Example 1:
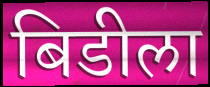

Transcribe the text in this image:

बिडीला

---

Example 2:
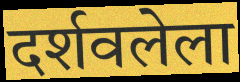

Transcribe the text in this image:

दर्शवलेला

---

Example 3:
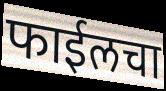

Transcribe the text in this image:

फाईलचा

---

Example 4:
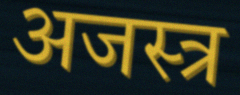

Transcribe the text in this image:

अजस्त्र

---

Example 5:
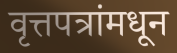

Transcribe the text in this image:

वृत्तपत्रांमधून